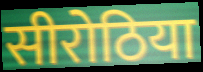
सीरोठिया